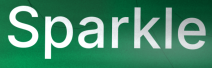
Sparkle